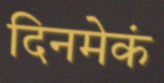
दिनमेकं